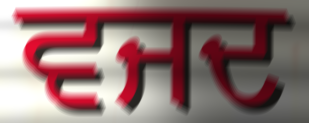
ਵਜਦ